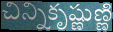
చిన్నికృష్ణుణ్ణి